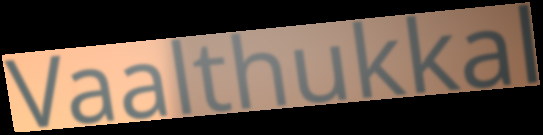
Vaalthukkal